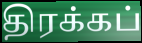
திரக்கப்